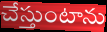
చేస్తుంటాను